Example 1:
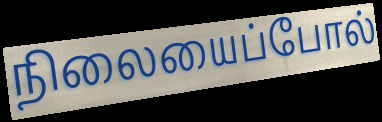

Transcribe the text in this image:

நிலையைப்போல்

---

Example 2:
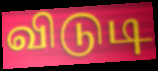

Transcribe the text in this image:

விடுடி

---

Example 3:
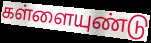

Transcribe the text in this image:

கள்ளையுண்டு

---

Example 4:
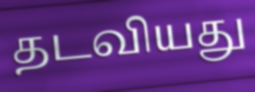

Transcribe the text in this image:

தடவியது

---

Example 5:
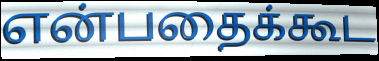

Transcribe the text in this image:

என்பதைக்கூட